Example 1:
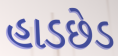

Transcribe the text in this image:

હાડછેડ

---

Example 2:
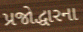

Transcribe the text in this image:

પ્રજોદ્ધારના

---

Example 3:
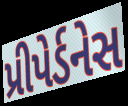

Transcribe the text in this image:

પ્રીપેર્ડનેસ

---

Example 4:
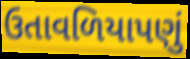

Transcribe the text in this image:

ઉતાવળિયાપણું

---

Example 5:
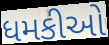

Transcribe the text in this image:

ધમકીઓ